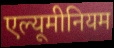
एल्यूमीनियम